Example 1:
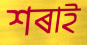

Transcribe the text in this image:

শৰাই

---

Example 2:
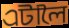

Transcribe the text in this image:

এটালৈ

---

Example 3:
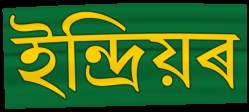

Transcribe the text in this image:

ইন্দ্ৰিয়ৰ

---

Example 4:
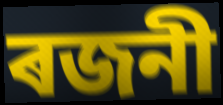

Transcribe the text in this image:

ৰজনী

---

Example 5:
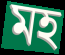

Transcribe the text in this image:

মহ